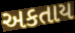
અકતાય